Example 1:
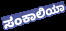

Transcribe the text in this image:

ಸಂಕಾಲಿಯಾ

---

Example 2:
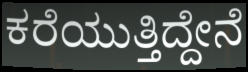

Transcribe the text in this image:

ಕರೆಯುತ್ತಿದ್ದೇನೆ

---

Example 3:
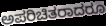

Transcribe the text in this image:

ಅಪರಿಚಿತರಾದರೂ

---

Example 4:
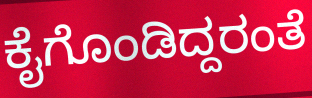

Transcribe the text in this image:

ಕೈಗೊಂಡಿದ್ದರಂತೆ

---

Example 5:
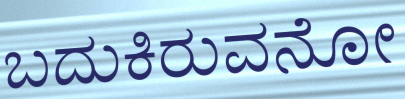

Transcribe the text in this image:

ಬದುಕಿರುವನೋ